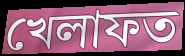
খেলাফত